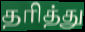
தரித்து